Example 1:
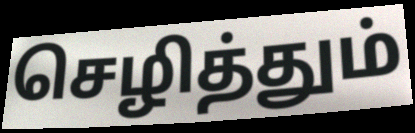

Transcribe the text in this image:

செழித்தும்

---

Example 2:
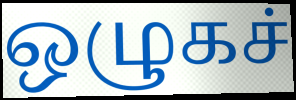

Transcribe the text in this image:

ஒழுகச்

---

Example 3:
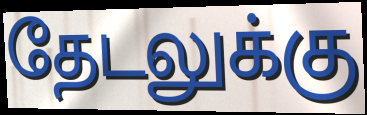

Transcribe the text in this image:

தேடலுக்கு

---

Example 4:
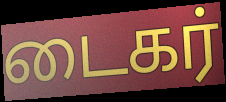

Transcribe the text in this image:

டைகர்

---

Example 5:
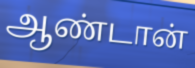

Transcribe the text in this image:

ஆண்டான்